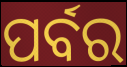
ପର୍ବର